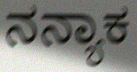
ನನ್ಯಾಕ